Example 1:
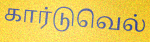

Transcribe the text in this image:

கார்டுவெல்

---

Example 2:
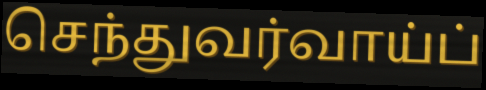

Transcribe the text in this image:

செந்துவர்வாய்ப்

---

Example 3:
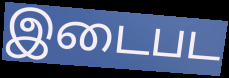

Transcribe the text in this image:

இடைபட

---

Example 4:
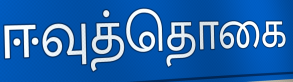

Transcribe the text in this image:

ஈவுத்தொகை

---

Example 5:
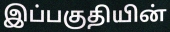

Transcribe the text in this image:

இப்பகுதியின்